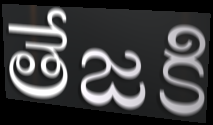
తేజకి